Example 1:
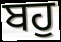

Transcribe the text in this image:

ਬਹੁ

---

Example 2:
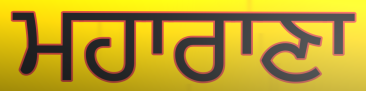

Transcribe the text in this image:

ਮਹਾਰਾਣਾ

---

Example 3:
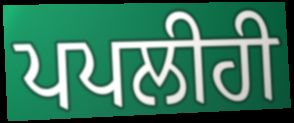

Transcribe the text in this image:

ਪਪਲੀਹੀ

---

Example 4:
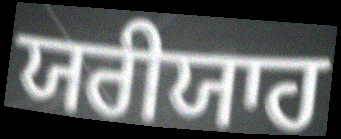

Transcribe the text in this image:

ਯਰੀਯਾਹ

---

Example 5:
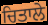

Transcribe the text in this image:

ਚਿਤਾਲੇ